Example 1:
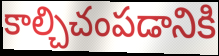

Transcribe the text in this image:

కాల్చిచంపడానికి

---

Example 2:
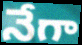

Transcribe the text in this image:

నేగా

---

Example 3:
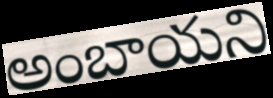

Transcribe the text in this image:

అంబాయని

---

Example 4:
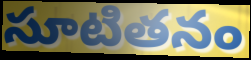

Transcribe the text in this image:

సూటితనం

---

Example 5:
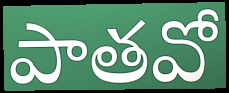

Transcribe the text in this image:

పాతవో